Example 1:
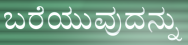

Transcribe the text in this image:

ಬರೆಯುವುದನ್ನು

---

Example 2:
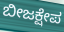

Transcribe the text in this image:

ಬೀಜಕ್ಷೇಪ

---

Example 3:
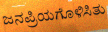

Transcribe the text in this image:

ಜನಪ್ರಿಯಗೊಳಿಸಿತು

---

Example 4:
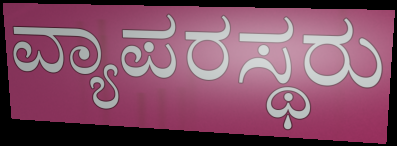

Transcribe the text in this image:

ವ್ಯಾಪರಸ್ಥರು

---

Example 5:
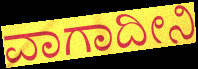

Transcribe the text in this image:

ವಾಗಾದೀನಿ